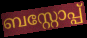
ബസ്റ്റോപ്പ്